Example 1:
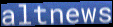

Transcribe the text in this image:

altnews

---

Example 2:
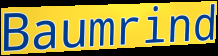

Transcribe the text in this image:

Baumrind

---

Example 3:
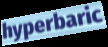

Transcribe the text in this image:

hyperbaric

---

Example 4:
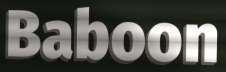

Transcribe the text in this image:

Baboon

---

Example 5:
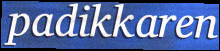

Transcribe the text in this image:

padikkaren